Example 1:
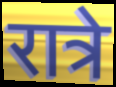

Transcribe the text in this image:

रात्रे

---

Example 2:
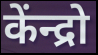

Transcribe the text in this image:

केंन्द्रो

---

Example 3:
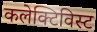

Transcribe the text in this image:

कलेक्टिविस्ट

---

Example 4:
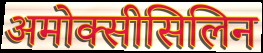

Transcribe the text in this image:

अमोक्सीसिलिन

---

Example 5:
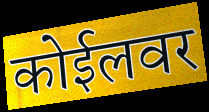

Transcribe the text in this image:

कोईलवर